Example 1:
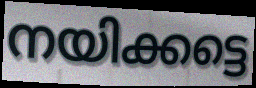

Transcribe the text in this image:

നയിക്കട്ടെ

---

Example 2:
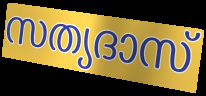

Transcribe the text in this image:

സത്യദാസ്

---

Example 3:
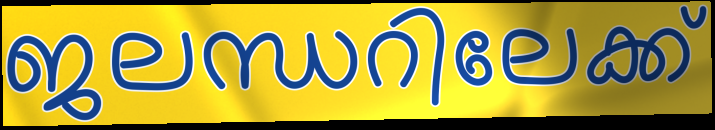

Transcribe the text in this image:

ജലന്ധറിലേക്ക്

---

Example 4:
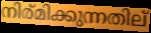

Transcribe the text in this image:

നിര്മിക്കുന്നതില്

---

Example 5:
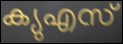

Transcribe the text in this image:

ക്യുഎസ്